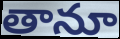
తానూ